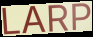
LARP